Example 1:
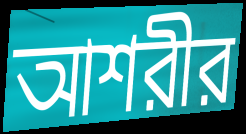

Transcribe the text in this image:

আশরীর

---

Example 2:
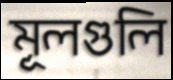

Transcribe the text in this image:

মূলগুলি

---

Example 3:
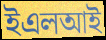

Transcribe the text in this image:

ইএলআই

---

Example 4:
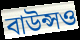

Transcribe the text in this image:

বাউন্সও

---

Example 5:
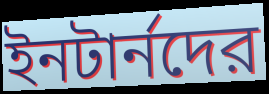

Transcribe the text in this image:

ইনটার্নদের